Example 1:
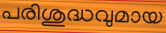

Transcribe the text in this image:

പരിശുദ്ധവുമായ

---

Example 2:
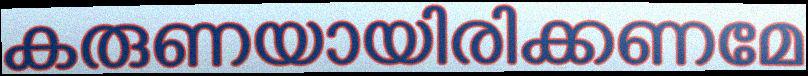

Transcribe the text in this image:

കരുണയായിരിക്കണമേ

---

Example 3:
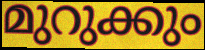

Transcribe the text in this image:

മുറുക്കും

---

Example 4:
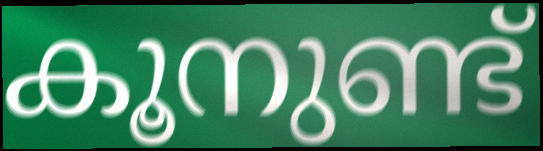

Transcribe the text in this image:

കൂനുണ്ട്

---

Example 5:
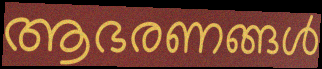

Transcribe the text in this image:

ആഭരണങ്ങൾ